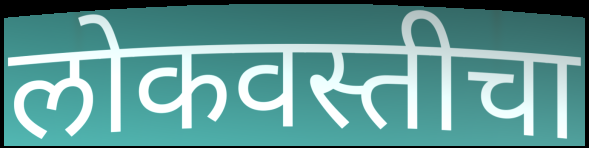
लोकवस्तीचा